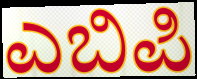
ಎಬಿಪಿ